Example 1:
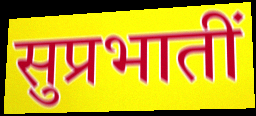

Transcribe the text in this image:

सुप्रभातीं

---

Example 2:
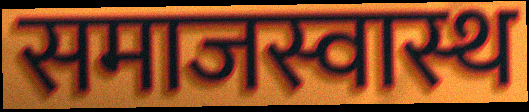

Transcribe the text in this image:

समाजस्वास्थ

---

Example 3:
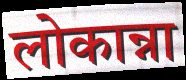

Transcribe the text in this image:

लोकान्ना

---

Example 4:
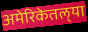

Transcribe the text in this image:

अमेरिकेतल्या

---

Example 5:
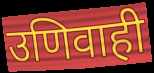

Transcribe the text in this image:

उणिवाही